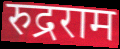
रुद्रराम